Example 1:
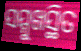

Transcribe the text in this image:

ସମ୍ମୁଖସ୍ଥିତ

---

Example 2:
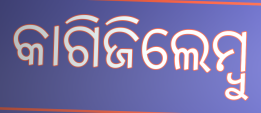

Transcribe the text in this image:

କାଗିଜିଲେମ୍ବୁ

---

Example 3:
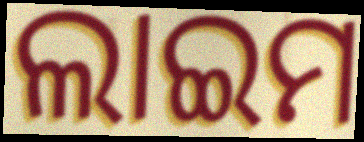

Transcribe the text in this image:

ଲାଇମ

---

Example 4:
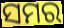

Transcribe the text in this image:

ସମର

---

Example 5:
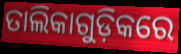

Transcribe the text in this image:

ତାଲିକାଗୁଡ଼ିକରେ